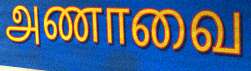
அணாவை